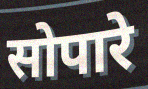
सोपारे